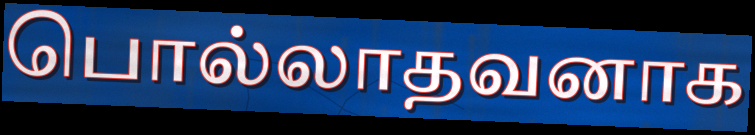
பொல்லாதவனாக